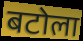
बटोला